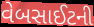
વેબસાઈટની